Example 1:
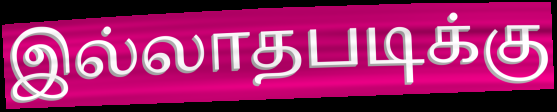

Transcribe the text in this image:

இல்லாதபடிக்கு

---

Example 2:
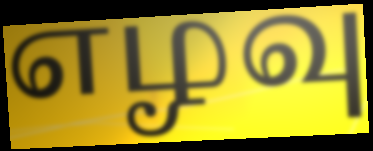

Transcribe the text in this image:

எழவு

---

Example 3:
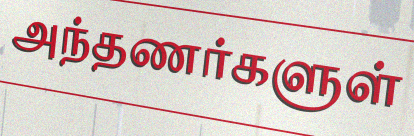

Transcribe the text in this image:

அந்தணர்களுள்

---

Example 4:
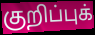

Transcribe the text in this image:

குறிப்புக்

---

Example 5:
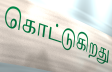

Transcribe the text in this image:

கொட்டுகிறது